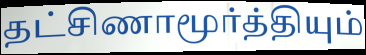
தட்சிணாமூர்த்தியும்